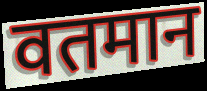
वतमान